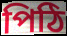
পিঠি